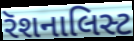
રૅશનાલિસ્ટ